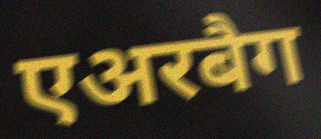
एअरबैग